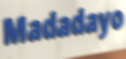
Madadayo